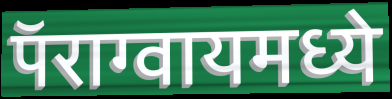
पॅराग्वायमध्ये